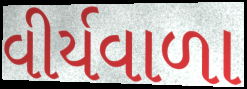
વીર્યવાળા